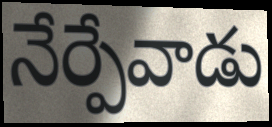
నేర్పేవాడు